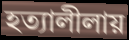
হত্যালীলায়